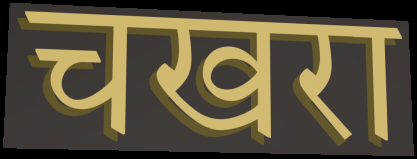
चखरा